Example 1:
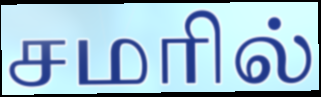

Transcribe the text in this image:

சமரில்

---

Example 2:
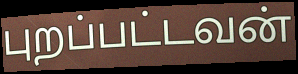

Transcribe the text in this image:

புறப்பட்டவன்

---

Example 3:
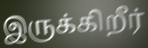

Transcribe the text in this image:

இருக்கிறீர்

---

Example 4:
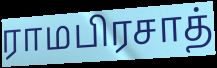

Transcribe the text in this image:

ராமபிரசாத்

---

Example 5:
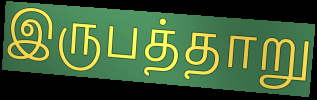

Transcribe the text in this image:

இருபத்தாறு